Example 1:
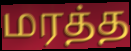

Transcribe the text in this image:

மரத்த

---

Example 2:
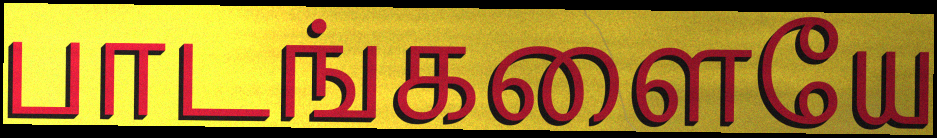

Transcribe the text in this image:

பாடங்களையே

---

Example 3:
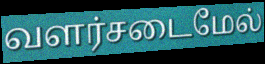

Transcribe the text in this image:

வளர்சடைமேல்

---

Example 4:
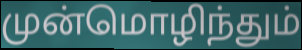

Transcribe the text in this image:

முன்மொழிந்தும்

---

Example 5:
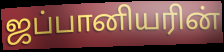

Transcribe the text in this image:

ஜப்பானியரின்